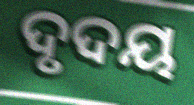
ଦୃଦୟ